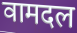
वामदल